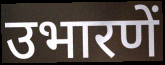
उभारणें